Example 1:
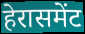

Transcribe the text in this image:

हेरासमेंट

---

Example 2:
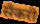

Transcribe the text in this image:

सँकरी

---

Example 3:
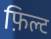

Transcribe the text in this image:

फ़िल्ट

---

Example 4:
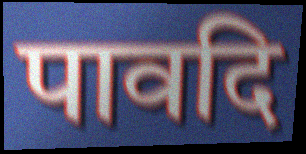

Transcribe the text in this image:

पावदि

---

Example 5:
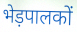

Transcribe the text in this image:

भेड़पालकों